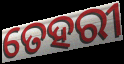
ତେହରୀ